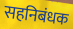
सहनिबंधक